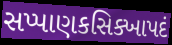
સપ્પાણકસિક્ખાપદં